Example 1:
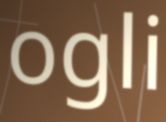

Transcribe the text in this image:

ogli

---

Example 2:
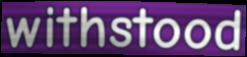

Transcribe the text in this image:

withstood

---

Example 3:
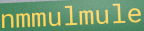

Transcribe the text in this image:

nmmulmule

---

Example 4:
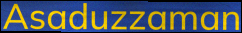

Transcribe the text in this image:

Asaduzzaman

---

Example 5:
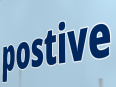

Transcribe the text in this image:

postive